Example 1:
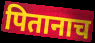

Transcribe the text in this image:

पितानाच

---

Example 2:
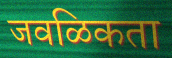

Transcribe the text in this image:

जवळिकता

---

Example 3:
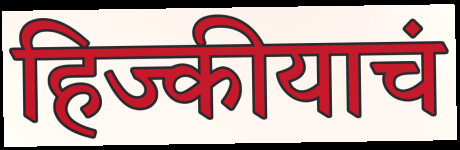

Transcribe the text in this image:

हिज्कीयाचं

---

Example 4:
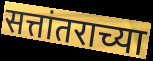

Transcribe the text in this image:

सत्तांतराच्या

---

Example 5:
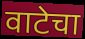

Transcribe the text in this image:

वाटेचा